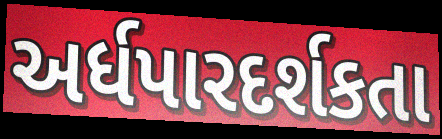
અર્ધપારદર્શકતા